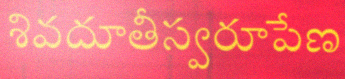
శివదూతీస్వరూపేణ